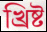
খ্রিষ্ট